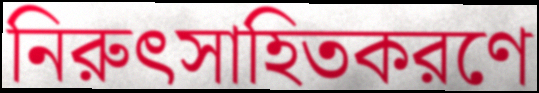
নিরুৎসাহিতকরণে